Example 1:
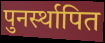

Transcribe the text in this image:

पुनर्स्‍थापित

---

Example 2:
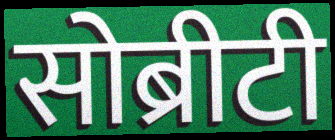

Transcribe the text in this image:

सोब्रीटी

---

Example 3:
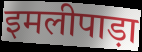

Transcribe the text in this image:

इमलीपाड़ा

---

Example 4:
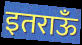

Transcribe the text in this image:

इतराऊँ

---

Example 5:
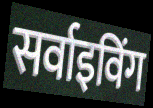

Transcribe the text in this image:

सर्वाइविंग